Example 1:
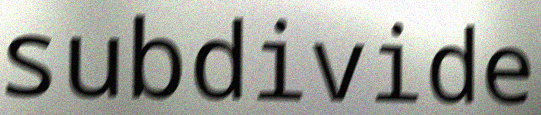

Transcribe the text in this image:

subdivide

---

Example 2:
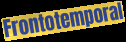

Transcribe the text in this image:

Frontotemporal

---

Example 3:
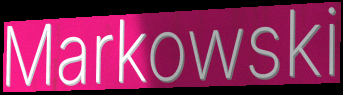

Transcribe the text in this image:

Markowski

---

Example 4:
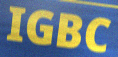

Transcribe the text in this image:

IGBC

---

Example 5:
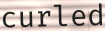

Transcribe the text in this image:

curled